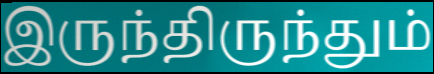
இருந்திருந்தும்